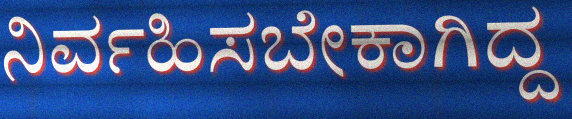
ನಿರ್ವಹಿಸಬೇಕಾಗಿದ್ದ